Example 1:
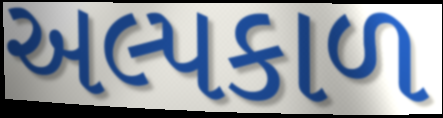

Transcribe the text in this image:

અલ્પકાળ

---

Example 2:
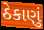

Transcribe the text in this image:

ઠેકાણું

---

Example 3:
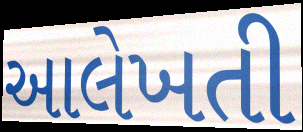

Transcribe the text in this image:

આલેખતી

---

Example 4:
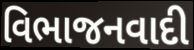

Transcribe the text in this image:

વિભાજનવાદી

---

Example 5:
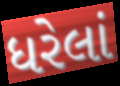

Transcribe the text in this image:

ધરેલાં